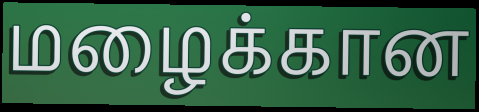
மழைக்கான